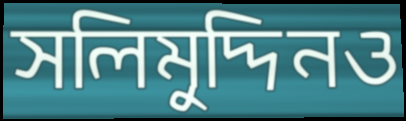
সলিমুদ্দিনও